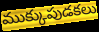
ముక్కుపుడకలు